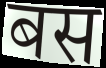
बस